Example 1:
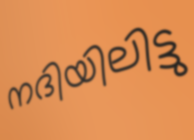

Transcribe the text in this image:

നദിയിലിട്ടു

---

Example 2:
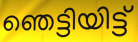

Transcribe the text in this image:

ഞെട്ടിയിട്ട്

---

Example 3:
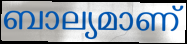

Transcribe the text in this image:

ബാല്യമാണ്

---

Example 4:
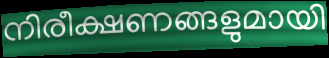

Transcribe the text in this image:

നിരീക്ഷണങ്ങളുമായി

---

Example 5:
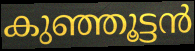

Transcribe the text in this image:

കുഞ്ഞൂട്ടൻ